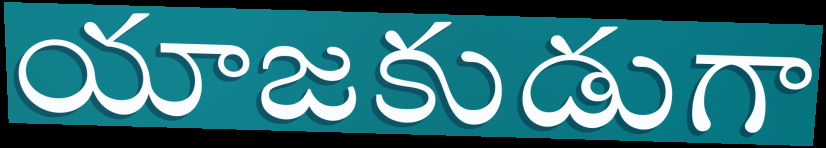
యాజకుడుగా